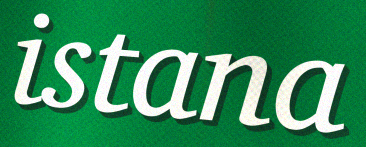
istana